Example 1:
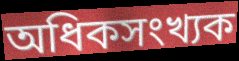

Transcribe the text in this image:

অধিকসংখ্যক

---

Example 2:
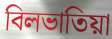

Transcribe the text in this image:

বিলভাতিয়া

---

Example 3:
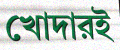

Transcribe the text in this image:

খোদারই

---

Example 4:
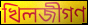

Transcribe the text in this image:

খিলজীগণ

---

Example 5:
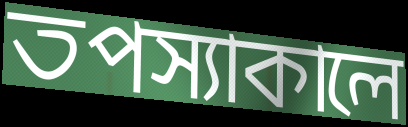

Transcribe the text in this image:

তপস্যাকালে